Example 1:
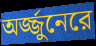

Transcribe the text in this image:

অর্জ্জুনেরে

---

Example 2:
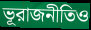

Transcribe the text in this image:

ভূরাজনীতিও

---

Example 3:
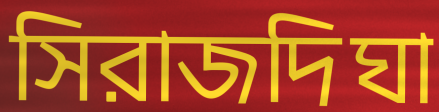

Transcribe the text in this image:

সিরাজদিঘা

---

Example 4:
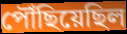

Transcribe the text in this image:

পৌঁছিয়েছিল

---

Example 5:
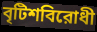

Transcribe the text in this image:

বৃটিশবিরোধী